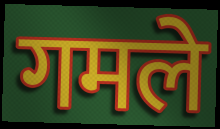
गमले